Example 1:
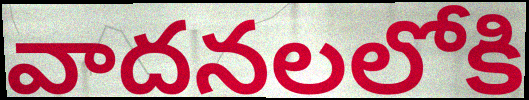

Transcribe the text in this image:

వాదనలలోకి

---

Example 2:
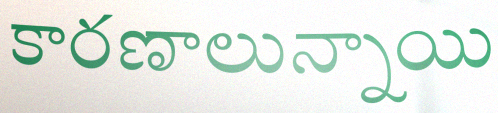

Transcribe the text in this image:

కారణాలున్నాయి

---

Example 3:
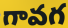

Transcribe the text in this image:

గావగ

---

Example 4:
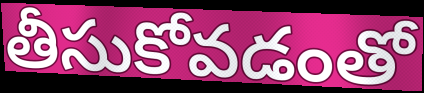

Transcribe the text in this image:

తీసుకోవడంతో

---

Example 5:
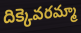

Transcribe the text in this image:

దిక్కెవరమ్మా